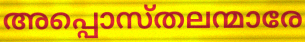
അപ്പൊസ്തലന്മാരേ